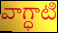
వాగ్ధాటి